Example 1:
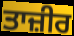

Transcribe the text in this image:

ਤਾਜ਼ੀਰ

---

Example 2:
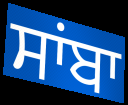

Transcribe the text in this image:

ਸਾਂਬਾ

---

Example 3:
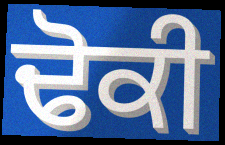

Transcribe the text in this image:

ਢੋਕੀ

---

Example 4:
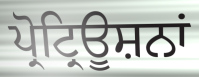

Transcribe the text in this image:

ਪ੍ਰੋਟ੍ਰਿਊਸ਼ਨਾਂ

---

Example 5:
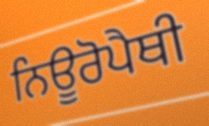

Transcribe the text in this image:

ਨਿਊਰੋਪੈਥੀ